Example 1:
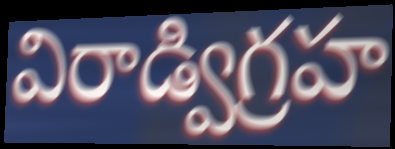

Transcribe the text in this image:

విరాడ్విగ్రహ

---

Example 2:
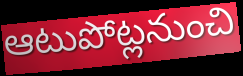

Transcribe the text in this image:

ఆటుపోట్లనుంచి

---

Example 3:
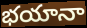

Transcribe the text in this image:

భయానా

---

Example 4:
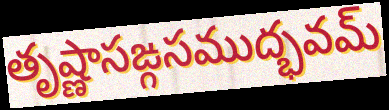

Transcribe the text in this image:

తృష్ణాసఙ్గసముద్భవమ్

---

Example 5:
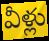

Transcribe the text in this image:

వీళ్లు